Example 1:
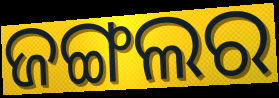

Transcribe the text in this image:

ଜଙ୍ଗଲର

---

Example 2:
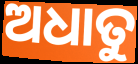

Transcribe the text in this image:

ଅଧାତୁ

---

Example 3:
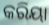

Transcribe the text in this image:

କରିୟା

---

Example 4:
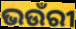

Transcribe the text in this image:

ଭଉଁରୀ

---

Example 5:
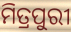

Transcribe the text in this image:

ମିତ୍ରପୁରୀ